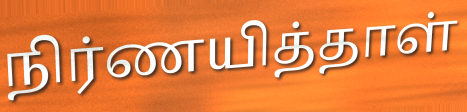
நிர்ணயித்தாள்